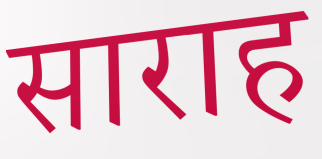
साराह